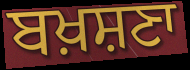
ਬਖ਼ਸ਼ਣਾ